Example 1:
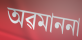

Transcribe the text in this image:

অৱমাননা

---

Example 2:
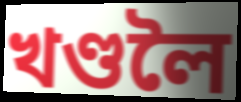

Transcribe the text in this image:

খণ্ডলৈ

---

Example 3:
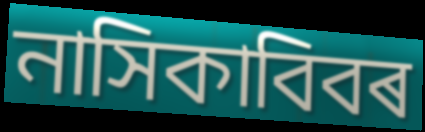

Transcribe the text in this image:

নাসিকাবিবৰ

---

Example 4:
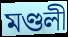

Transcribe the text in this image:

মণ্ডলী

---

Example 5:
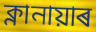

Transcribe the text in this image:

ক্নানায়াৰ